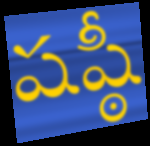
షష్ఠీ